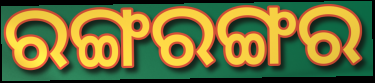
ରଙ୍ଗରଙ୍ଗର